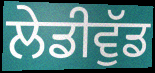
ਲੇਡੀਵੁੱਡ